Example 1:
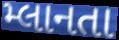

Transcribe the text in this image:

મ્લાનતા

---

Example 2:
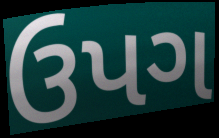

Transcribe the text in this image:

ઉપગ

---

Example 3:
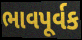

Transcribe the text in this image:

ભાવપૂર્વક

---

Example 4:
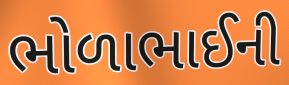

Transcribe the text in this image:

ભોળાભાઈની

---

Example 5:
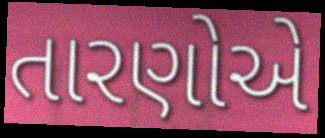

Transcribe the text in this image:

તારણોએ